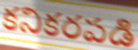
కనికరపడి